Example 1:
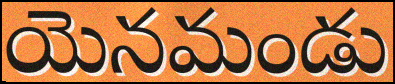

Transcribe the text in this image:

యెనమండు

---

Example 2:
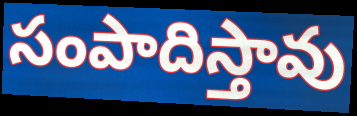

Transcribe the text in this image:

సంపాదిస్తావు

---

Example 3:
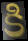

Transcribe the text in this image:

కి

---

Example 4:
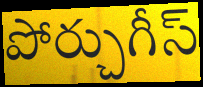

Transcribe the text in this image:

పోర్చుగీస్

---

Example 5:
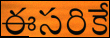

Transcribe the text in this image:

ఈసరికే